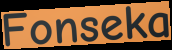
Fonseka